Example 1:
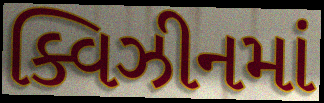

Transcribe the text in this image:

ક્વિઝીનમાં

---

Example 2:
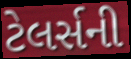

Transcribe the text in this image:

ટેલર્સની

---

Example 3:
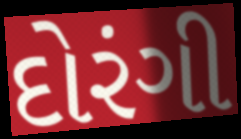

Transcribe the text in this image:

દોરંગી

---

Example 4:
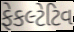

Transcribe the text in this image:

ફેકલ્ટેટિવ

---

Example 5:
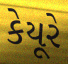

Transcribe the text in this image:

કેયૂરે